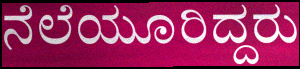
ನೆಲೆಯೂರಿದ್ದರು